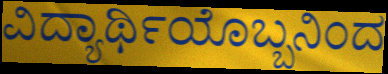
ವಿದ್ಯಾರ್ಥಿಯೊಬ್ಬನಿಂದ